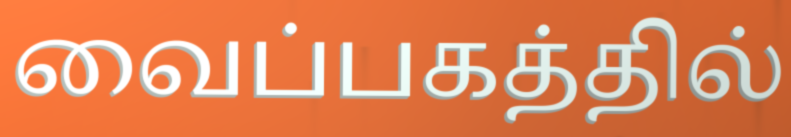
வைப்பகத்தில்